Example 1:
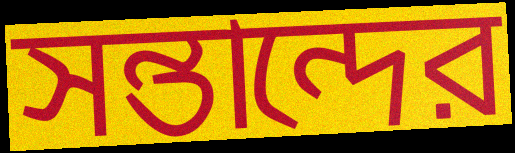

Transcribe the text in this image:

সন্তান্দের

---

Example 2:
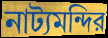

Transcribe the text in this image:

নাট্যমন্দির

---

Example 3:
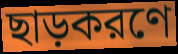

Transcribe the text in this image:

ছাড়করণে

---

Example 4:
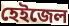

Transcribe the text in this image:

হেইজেল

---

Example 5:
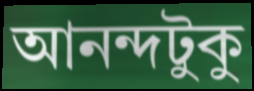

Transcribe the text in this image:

আনন্দটুকু